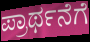
ಪ್ರಾರ್ಥನೆಗೆ